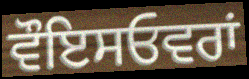
ਵੌਇਸਓਵਰਾਂ